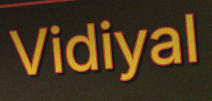
Vidiyal